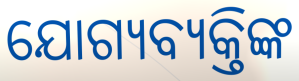
ଯୋଗ୍ୟବ୍ୟକ୍ତିଙ୍କ